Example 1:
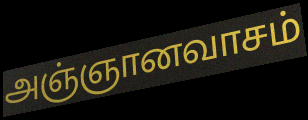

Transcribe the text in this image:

அஞ்ஞானவாசம்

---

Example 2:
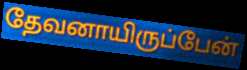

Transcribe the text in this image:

தேவனாயிருப்பேன்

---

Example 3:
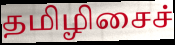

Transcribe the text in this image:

தமிழிசைச்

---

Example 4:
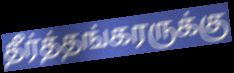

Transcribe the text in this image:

தீர்த்தங்கரருக்கு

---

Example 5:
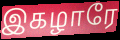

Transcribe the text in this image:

இகழாரே